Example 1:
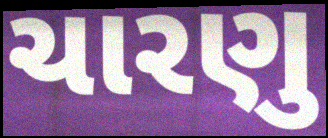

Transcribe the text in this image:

ચારણુ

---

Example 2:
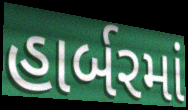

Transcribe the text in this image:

હાર્બરમાં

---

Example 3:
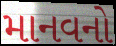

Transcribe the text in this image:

માનવનો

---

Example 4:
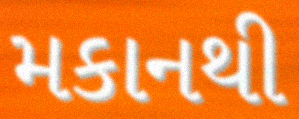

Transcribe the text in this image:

મકાનથી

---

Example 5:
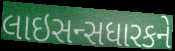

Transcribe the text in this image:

લાઇસન્સધારકને